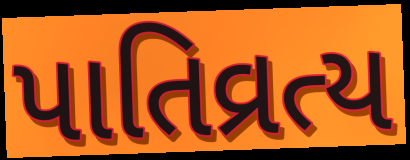
પાતિવ્રત્ય